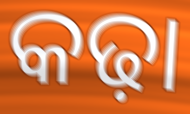
କଢ଼ା